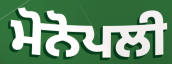
ਮੋਨੋਪਲੀ